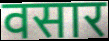
वसार